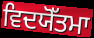
ਵਿਦਯੋੱਤਮਾ